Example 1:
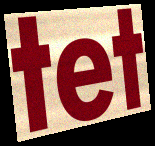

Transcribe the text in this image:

tet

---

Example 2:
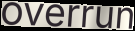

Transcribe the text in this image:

overrun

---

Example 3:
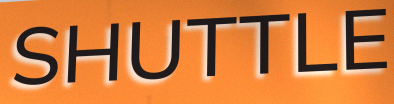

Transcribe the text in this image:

SHUTTLE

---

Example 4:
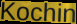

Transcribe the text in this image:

Kochin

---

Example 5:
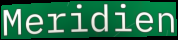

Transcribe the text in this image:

Meridien